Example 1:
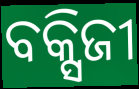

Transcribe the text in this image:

ବକ୍ସିଜୀ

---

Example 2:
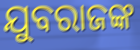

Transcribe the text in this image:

ଯୁବରାଜଙ୍କ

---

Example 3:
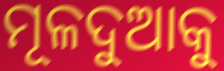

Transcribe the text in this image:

ମୂଳଦୁଆକୁ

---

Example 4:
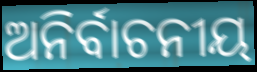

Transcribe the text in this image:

ଅନିର୍ବାଚନୀୟ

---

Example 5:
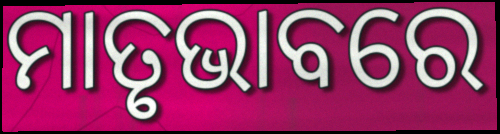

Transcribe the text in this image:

ମାତୃଭାବରେ